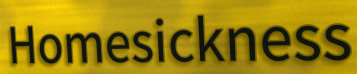
Homesickness